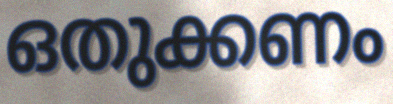
ഒതുക്കണം